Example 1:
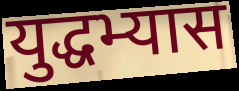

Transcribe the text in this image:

युद्धभ्यास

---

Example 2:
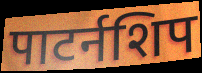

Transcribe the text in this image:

पाटर्नशिप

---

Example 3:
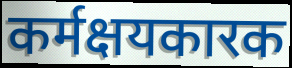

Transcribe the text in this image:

कर्मक्षयकारक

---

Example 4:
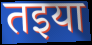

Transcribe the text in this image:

तइया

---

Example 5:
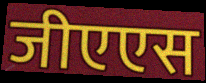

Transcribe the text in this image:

जीएएस